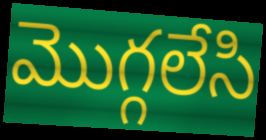
మొగ్గలేసి